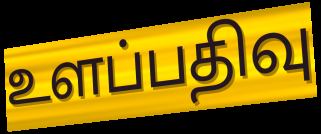
உளப்பதிவு